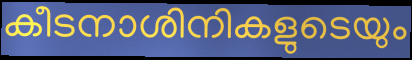
കീടനാശിനികളുടെയും